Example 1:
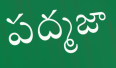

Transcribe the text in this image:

పద్మజా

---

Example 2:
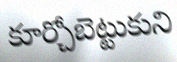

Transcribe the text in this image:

కూర్చోబెట్టుకుని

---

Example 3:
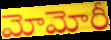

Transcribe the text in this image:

మోమోరీ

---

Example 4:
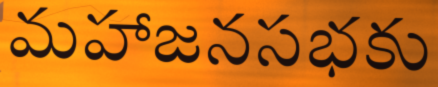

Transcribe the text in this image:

మహాజనసభకు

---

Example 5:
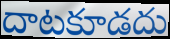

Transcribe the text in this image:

దాటకూడదు